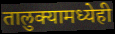
तालुक्यामध्येही